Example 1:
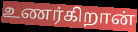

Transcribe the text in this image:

உணர்கிறான்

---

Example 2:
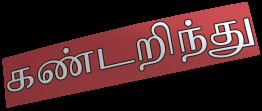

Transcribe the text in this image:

கண்டறிந்து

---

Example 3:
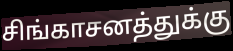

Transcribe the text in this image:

சிங்காசனத்துக்கு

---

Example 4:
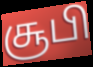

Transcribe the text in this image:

சூபி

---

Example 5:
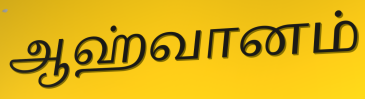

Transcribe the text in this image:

ஆஹ்வானம்